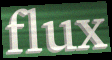
flux